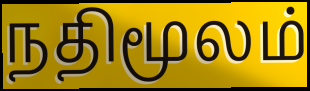
நதிமூலம்